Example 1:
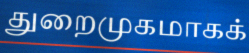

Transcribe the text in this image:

துறைமுகமாகக்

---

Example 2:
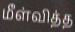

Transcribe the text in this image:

மீள்வித்த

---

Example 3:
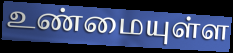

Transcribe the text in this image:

உண்மையுள்ள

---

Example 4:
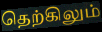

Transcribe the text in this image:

தெற்கிலும்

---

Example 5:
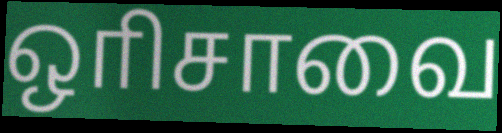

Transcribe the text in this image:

ஒரிசாவை